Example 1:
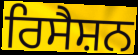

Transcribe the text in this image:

ਰਿਸੈਸ਼ਨ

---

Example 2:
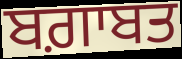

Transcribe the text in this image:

ਬਗ਼ਾਬਤ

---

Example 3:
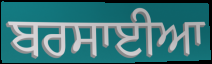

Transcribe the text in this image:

ਬਰਸਾਈਆ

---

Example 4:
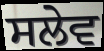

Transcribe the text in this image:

ਸਲੇਵ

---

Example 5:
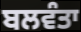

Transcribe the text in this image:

ਬਲਵੰਤਾ